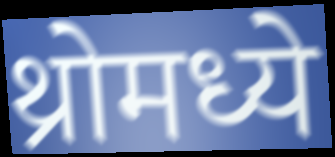
थ्रोमध्ये